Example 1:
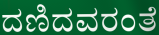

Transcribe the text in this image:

ದಣಿದವರಂತೆ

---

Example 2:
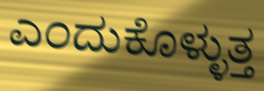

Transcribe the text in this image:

ಎಂದುಕೊಳ್ಳುತ್ತ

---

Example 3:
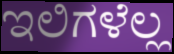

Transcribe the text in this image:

ಇಲಿಗಳೆಲ್ಲ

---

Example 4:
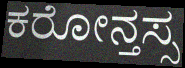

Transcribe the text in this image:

ಕರೋನ್ತಸ್ಸ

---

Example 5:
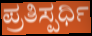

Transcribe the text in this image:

ಪ್ರತಿಸ್ಪರ್ಧಿ